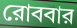
রোববার